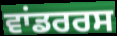
ਵਾਂਡਰਰਸ